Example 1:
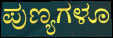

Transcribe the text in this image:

ಪುಣ್ಯಗಳೂ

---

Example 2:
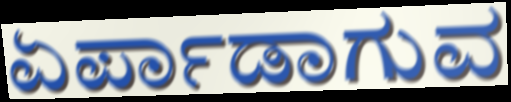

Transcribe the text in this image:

ಏರ್ಪಾಡಾಗುವ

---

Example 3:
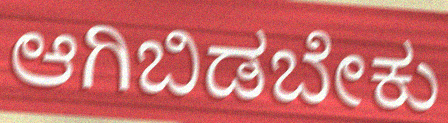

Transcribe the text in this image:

ಆಗಿಬಿಡಬೇಕು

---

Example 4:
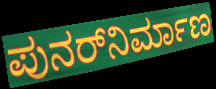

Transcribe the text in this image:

ಪುನರ್‌ನಿರ್ಮಾಣ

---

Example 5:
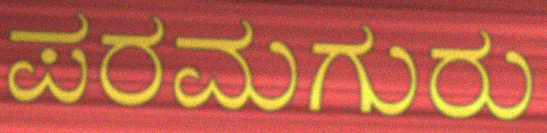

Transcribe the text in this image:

ಪರಮಗುರು